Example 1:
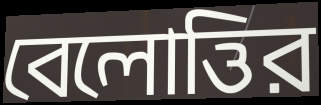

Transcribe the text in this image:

বেলোত্তির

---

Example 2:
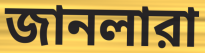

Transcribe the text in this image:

জানলারা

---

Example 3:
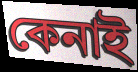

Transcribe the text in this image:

কেনাই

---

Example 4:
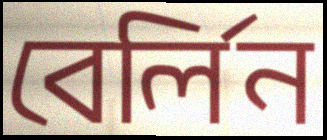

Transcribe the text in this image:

বের্লিন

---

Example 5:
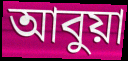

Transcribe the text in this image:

আবুয়া